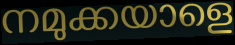
നമുക്കയാളെ